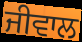
ਜੀਵਾਲ